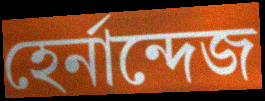
হের্নান্দেজ